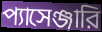
প্যাসেঞ্জারি